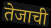
तेजाची